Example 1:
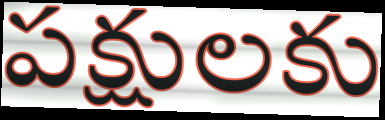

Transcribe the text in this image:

పక్షులకు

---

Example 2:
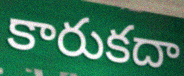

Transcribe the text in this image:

కారుకదా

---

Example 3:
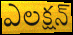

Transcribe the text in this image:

ఎలక్షన్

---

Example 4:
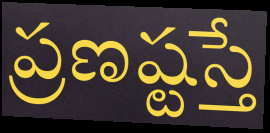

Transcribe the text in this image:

ప్రణష్టస్తే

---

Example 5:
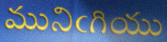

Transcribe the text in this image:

మునిఁగియు